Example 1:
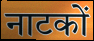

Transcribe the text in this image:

नाटकों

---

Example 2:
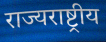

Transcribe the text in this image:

राज्यराष्ट्रीय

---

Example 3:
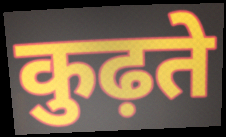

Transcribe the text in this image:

कुढ़ते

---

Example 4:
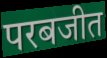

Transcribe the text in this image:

परबजीत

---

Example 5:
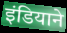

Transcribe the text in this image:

इंडियाने